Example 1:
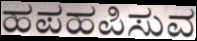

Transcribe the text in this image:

ಹಪಹಪಿಸುವ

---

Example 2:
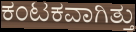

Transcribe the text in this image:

ಕಂಟಕವಾಗಿತ್ತು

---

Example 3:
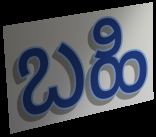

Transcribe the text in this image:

ಬಹಿ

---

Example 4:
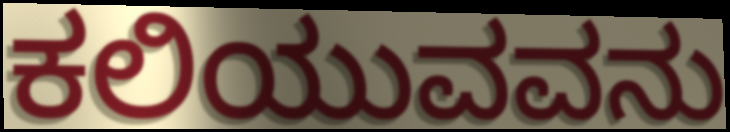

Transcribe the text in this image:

ಕಲಿಯುವವನು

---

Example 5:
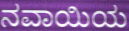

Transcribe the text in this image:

ನವಾಯಿಯ